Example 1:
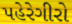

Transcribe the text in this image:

પહેરેગીરો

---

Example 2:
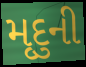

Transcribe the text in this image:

મૃદુની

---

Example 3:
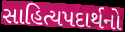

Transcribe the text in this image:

સાહિત્યપદાર્થનો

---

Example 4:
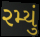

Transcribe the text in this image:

રમ્યું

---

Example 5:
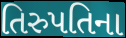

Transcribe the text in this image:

તિરુપતિના